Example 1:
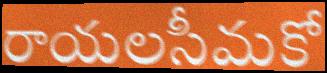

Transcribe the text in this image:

రాయలసీమకో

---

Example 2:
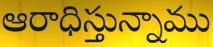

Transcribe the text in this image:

ఆరాధిస్తున్నాము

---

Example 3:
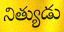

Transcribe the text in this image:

నిత్యుడు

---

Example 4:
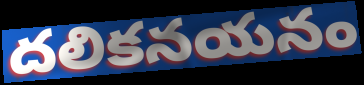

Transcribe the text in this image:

దలికనయనం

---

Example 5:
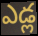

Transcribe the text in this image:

ఎడ్ల